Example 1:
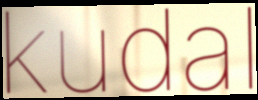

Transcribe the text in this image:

kudal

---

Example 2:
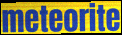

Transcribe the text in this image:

meteorite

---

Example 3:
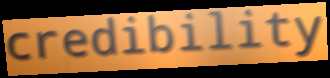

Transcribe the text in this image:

credibility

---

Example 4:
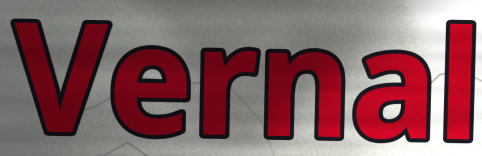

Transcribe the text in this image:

Vernal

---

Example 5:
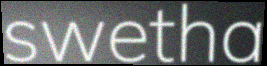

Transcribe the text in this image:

swetha